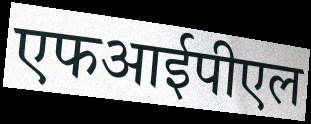
एफआईपीएल